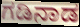
ಗಡಿನಾಡ